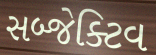
સબ્જેક્ટિવ